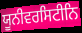
ਯੂਨੀਵਰਸਿਟੀਨਿ